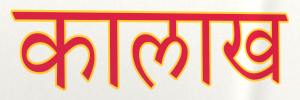
कालाख